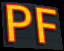
PF